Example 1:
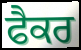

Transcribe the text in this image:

ਫੈਕਰ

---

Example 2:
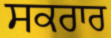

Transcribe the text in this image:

ਸਕਰਾਰ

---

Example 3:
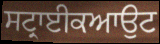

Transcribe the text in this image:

ਸਟ੍ਰਾਈਕਆਉਟ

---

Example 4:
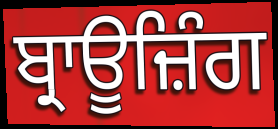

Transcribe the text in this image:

ਬ੍ਰਾਊਜ਼ਿੰਗ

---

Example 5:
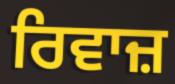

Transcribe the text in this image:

ਰਿਵਾਜ਼